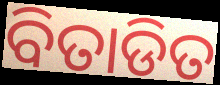
ବିତାଡିତ